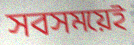
সবসময়েই